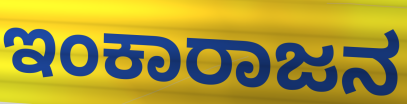
ಇಂಕಾರಾಜನ